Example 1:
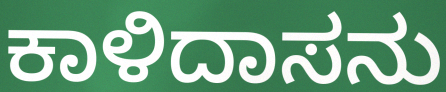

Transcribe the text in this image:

ಕಾಳಿದಾಸನು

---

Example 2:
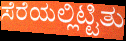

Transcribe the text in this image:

ಸೆರೆಯಲ್ಲಿಟ್ಟಿತು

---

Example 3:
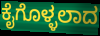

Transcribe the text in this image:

ಕೈಗೊಳ್ಳಲಾದ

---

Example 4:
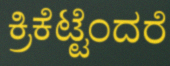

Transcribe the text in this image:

ಕ್ರಿಕೆಟ್ಟೆಂದರೆ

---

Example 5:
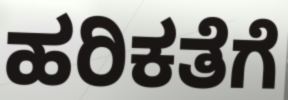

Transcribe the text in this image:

ಹರಿಕತೆಗೆ